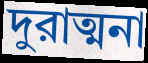
দুরাত্মনা